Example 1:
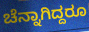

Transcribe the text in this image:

ಚೆನ್ನಾಗಿದ್ದರೂ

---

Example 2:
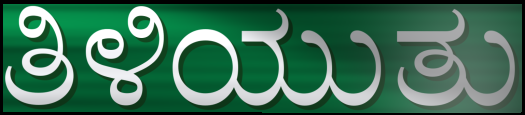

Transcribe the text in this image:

ತಿಳಿಯುತು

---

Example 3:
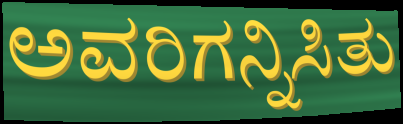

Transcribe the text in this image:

ಅವರಿಗನ್ನಿಸಿತು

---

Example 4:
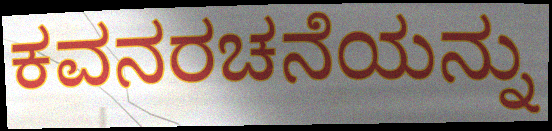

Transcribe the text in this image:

ಕವನರಚನೆಯನ್ನು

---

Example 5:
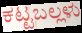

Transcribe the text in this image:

ಕಟ್ಟಬಲ್ಲಳು